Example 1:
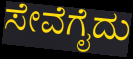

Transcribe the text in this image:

ಸೇವೆಗೈದು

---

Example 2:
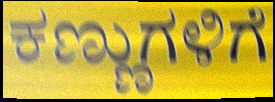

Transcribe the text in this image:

ಕಣ್ಣುಗಳಿಗೆ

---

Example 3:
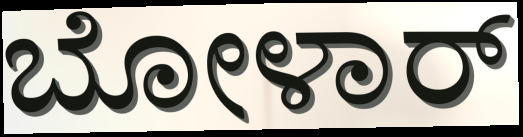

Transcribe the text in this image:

ಬೋಳಾರ್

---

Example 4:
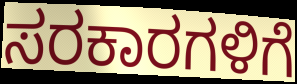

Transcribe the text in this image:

ಸರಕಾರಗಳಿಗೆ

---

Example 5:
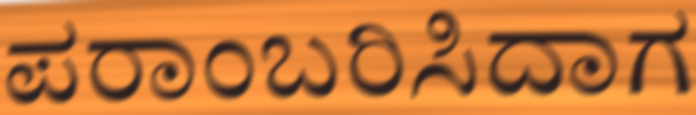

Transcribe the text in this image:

ಪರಾಂಬರಿಸಿದಾಗ